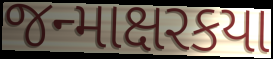
જન્માક્ષરકયા